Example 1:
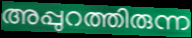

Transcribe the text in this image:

അപ്പുറത്തിരുന്ന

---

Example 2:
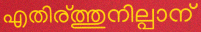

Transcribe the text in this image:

എതിര്ത്തുനില്പാന്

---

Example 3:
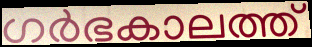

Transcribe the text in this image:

ഗർഭകാലത്ത്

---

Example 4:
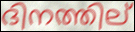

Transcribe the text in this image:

ദിനത്തില്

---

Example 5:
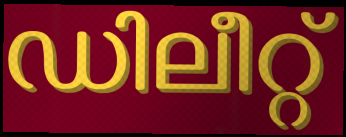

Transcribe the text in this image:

ഡിലീറ്റ്